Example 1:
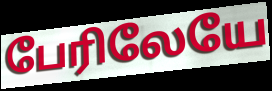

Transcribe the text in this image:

பேரிலேயே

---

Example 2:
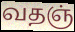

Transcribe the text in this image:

வதஞ்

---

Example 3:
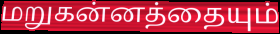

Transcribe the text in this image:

மறுகன்னத்தையும்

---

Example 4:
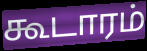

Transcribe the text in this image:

கூடாரம்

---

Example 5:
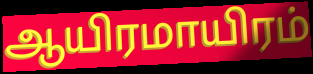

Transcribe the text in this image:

ஆயிரமாயிரம்